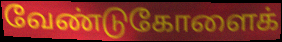
வேண்டுகோளைக்